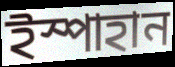
ইস্পাহান